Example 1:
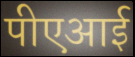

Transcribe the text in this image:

पीएआई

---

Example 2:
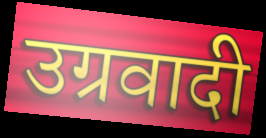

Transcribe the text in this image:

उग्रवादी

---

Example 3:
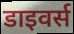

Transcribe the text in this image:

डाइवर्स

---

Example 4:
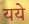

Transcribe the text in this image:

यये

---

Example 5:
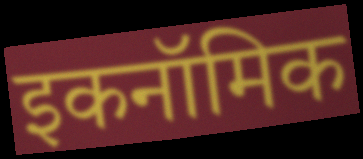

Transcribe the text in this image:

इकनॉमिक